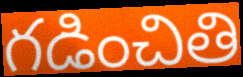
గడించితి